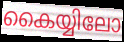
കൈയ്യിലോ